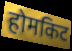
होमकिट